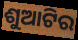
ଶୁଆଟିର